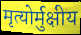
मृत्‍योर्मुक्षीय